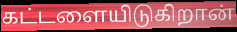
கட்டளையிடுகிறான்